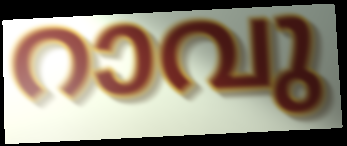
റാവു